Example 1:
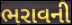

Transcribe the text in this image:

ભરાવની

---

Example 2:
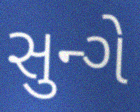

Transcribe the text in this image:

સુન્ગે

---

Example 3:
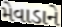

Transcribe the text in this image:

મેવાડાને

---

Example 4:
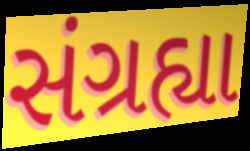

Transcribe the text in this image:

સંગ્રહ્યા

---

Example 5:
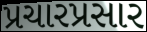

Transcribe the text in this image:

પ્રચારપ્રસાર